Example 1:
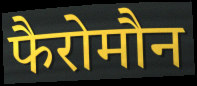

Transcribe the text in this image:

फैरोमौन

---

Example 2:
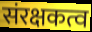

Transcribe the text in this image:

संरक्षकत्व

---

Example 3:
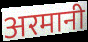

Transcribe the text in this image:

अरमानी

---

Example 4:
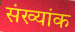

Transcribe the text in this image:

संख्यांक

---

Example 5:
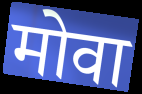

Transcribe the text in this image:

मोवा